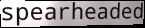
spearheaded